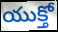
యుక్తో